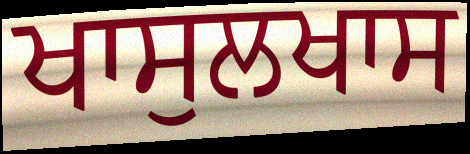
ਖਾਸੁਲਖਾਸ